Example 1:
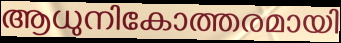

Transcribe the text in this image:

ആധുനികോത്തരമായി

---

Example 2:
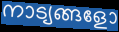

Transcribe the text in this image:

നാട്യങ്ങളോ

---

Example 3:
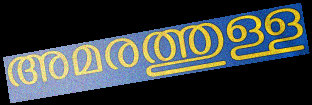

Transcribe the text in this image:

അമരത്തുള്ള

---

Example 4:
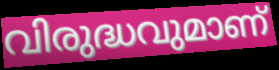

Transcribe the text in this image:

വിരുദ്ധവുമാണ്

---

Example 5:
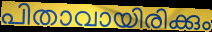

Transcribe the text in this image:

പിതാവായിരിക്കും